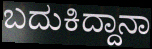
ಬದುಕಿದ್ದಾನಾ